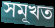
সমূখত